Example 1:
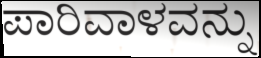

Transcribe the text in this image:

ಪಾರಿವಾಳವನ್ನು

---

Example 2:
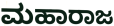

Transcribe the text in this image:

ಮಹಾರಾಜ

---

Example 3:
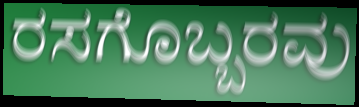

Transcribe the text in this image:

ರಸಗೊಬ್ಬರವು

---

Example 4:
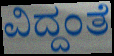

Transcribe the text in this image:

ವಿದ್ದಂತೆ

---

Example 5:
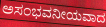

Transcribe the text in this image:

ಅಸಂಭವನೀಯವಾದ